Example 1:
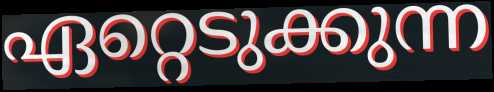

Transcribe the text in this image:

ഏറ്റെടുക്കുന്ന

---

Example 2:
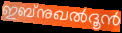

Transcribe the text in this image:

ഇബ്നുഖൽദൂൻ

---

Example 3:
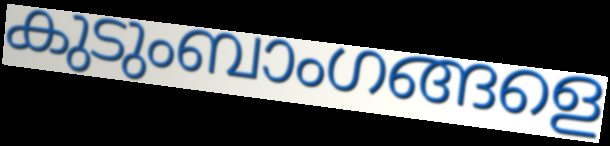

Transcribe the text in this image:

കുടുംബാംഗങ്ങളെ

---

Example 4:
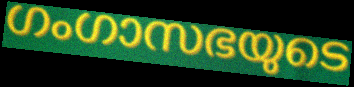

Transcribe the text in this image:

ഗംഗാസഭയുടെ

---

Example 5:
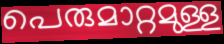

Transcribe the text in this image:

പെരുമാറ്റമുള്ള